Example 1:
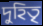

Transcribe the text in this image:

দুহিতৃ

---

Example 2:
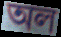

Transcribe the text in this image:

অল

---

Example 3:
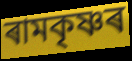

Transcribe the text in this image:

ৰামকৃষ্ণৰ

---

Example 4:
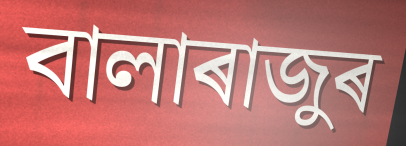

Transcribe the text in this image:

বালাৰাজুৰ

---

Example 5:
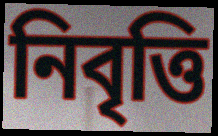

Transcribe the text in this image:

নিবৃত্তি